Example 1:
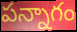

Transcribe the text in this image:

పన్నాగం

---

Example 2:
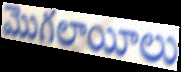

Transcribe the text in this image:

మొగలాయీలు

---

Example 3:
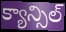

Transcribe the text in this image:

క్యాన్సిల్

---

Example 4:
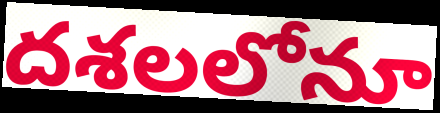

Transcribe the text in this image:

దశలలోనూ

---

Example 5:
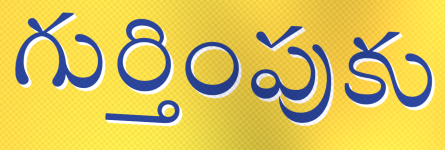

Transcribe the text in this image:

గుర్తింపుకు